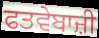
ਫਤਵੇਬਾਜ਼ੀ